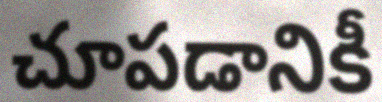
చూపడానికీ